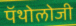
पॅथोलोजी